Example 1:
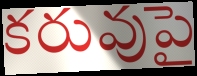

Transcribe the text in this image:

కరువుపై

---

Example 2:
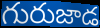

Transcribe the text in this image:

గురుజాడ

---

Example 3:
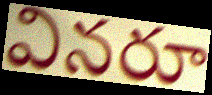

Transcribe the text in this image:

వినరూ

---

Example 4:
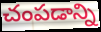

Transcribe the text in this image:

చంపడాన్ని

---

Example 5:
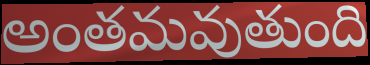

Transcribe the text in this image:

అంతమవుతుంది